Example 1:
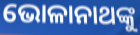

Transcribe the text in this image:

ଭୋଳାନାଥଙ୍କୁ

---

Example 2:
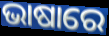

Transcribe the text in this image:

ଭାଷାରେ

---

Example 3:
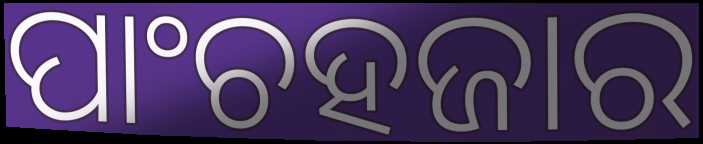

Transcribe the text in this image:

ପାଂଚହଜାର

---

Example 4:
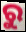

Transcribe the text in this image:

ରୁ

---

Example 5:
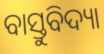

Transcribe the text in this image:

ବାସ୍ତୁବିଦ୍ୟା